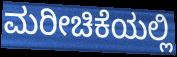
ಮರೀಚಿಕೆಯಲ್ಲಿ